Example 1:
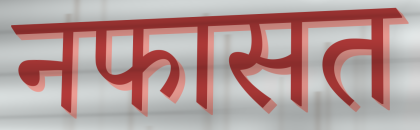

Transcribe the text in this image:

नफासत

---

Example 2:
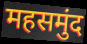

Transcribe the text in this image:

महसमुंद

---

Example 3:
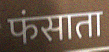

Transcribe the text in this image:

फंसाता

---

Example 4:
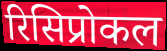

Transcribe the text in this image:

रिसिप्रोकल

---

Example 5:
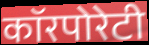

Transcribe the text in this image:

कॉरपोरेटी